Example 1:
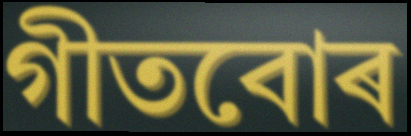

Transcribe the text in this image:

গীতবোৰ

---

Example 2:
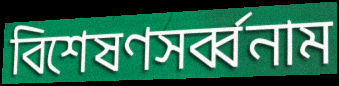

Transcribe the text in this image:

বিশেষণসৰ্ব্বনাম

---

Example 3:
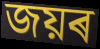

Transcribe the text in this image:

জয়ৰ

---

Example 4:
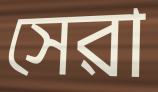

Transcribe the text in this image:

সেৱা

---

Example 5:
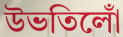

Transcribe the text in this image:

উভতিলোঁ